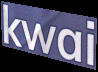
kwai